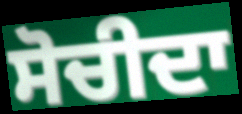
ਸੋਚੀਦਾ